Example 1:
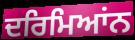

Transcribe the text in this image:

ਦਰਿਮਿਆਂਨ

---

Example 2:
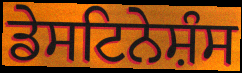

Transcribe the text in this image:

ਡੇਸਟਿਨੇਸ਼ੰਸ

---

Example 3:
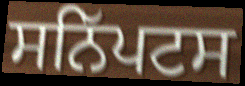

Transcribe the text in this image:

ਸਨਿੱਪਟਸ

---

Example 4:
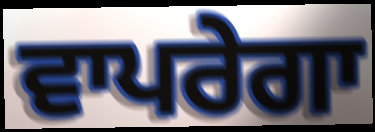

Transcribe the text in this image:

ਵਾਪਰੇਗਾ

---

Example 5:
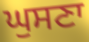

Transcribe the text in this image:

ਘੁਸਣਾ